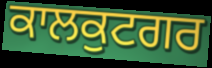
ਕਾਲਕੁਟਗਰ